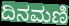
ದಿನಮಣಿ